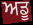
ਅਡੂ